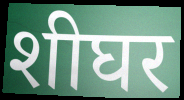
शीघर